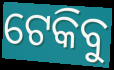
ଟେକିବୁ